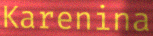
Karenina